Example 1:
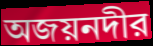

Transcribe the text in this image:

অজয়নদীর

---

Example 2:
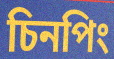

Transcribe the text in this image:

চিনপিং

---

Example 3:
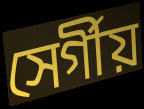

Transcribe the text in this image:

সের্গীয়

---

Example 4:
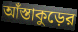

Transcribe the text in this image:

আঁস্তাকুড়ের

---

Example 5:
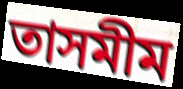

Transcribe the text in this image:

তাসমীম